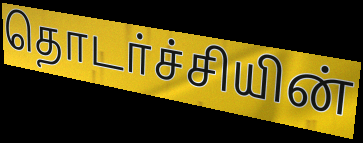
தொடர்ச்சியின்